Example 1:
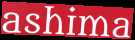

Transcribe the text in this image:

ashima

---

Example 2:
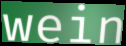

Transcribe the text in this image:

wein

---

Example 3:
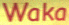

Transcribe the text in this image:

Waka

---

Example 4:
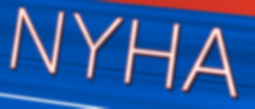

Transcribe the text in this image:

NYHA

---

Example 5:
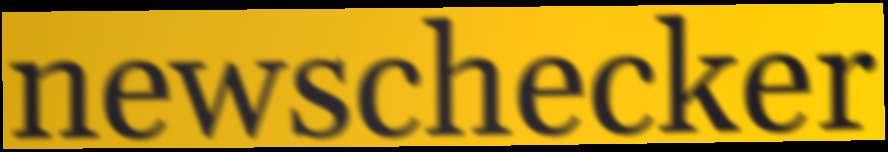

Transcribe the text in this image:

newschecker